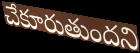
చేకూరుతుందని